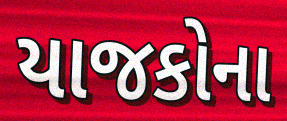
યાજકોના